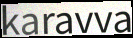
karavva